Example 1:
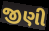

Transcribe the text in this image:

જીણી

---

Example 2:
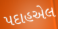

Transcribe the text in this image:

પદાહએલ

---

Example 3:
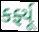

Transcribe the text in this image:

કર્ફ્યૂ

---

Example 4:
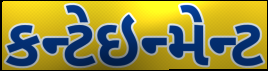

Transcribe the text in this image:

કન્ટેઇન્મેન્ટ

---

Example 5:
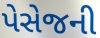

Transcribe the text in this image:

પેસેજની